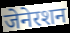
जेनेरशन